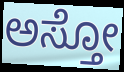
ಅಸ್ತೋ